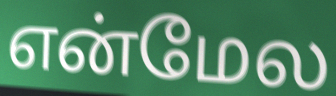
என்மேல